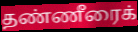
தண்ணீரைக்